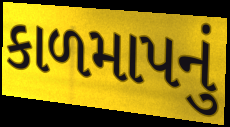
કાળમાપનું